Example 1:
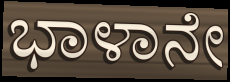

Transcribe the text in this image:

ಭಾಳಾನೇ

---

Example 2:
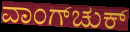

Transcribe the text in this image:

ವಾಂಗ್‌ಚುಕ್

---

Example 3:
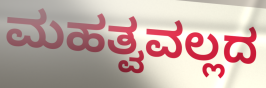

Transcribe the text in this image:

ಮಹತ್ವವಲ್ಲದ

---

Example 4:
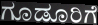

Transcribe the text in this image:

ಗೂಡೂರಿಗೆ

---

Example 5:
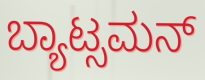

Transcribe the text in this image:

ಬ್ಯಾಟ್ಸಮನ್